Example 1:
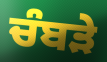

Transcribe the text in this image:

ਚੰਬੜੇ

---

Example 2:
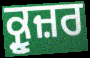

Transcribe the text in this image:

ਕ੍ਰੂਜ਼ਰ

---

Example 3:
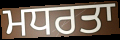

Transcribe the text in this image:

ਮਧਰਤਾ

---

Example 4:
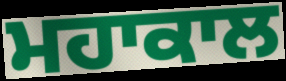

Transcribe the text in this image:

ਮਹਾਕਾਲ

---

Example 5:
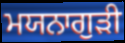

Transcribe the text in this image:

ਮਯਨਾਗੁੜੀ